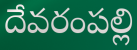
దేవరంపల్లి